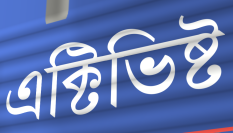
এক্টিভিষ্ট